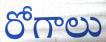
రోగాలు